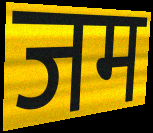
जम